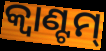
କ୍ୱାଣ୍ଟମ୍